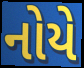
નોયે